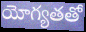
యోగ్యతతో